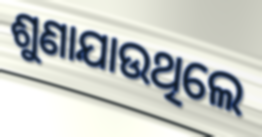
ଶୁଣାଯାଉଥିଲେ